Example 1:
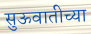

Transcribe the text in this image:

सुऊवातीच्या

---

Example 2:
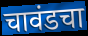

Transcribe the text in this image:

चावंडचा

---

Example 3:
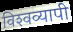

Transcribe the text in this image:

विश्‍वव्यापी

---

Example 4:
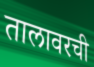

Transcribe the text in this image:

तालावरची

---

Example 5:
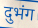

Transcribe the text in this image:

दुभंग